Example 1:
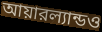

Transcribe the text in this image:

আয়ারল্যান্ডও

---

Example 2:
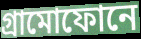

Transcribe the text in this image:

গ্রামোফোনে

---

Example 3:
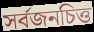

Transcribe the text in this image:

সর্বজনচিত্ত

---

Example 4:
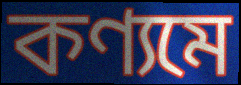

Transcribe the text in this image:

কণ্যমে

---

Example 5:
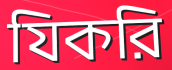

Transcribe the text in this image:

যিকরি